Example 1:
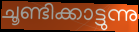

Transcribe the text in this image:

ചൂണ്ടിക്കാട്ടുന്നു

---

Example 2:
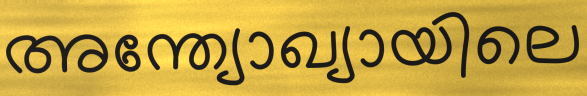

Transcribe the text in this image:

അന്ത്യോഖ്യായിലെ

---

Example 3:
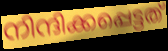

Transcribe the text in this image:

നിന്ദിക്കപ്പെട്ടത്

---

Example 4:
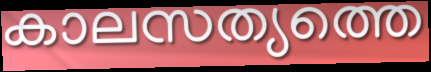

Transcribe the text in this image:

കാലസത്യത്തെ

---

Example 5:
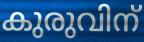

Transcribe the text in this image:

കുരുവിന്